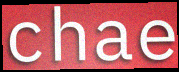
chae